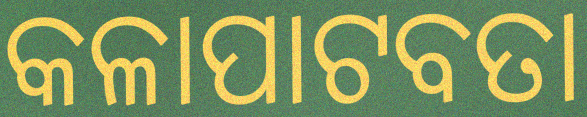
କଳାପାଟବତା